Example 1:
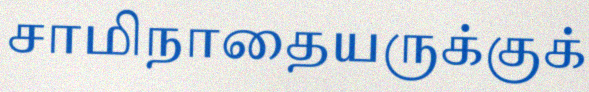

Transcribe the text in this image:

சாமிநாதையருக்குக்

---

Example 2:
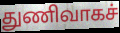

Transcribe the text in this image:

துணிவாகச்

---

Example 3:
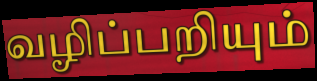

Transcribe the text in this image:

வழிப்பறியும்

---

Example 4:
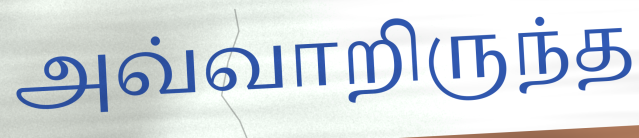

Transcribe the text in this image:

அவ்வாறிருந்த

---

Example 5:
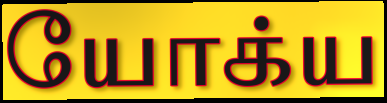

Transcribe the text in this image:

யோக்ய